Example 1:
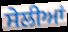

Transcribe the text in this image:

ਸੇਲੀਆਂ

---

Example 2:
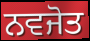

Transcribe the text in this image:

ਨਵਜੋਤ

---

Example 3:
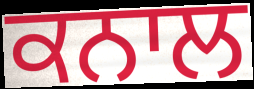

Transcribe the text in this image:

ਕਨਾਲ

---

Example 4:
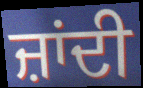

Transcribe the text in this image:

ਜ਼ਾਂਦੀ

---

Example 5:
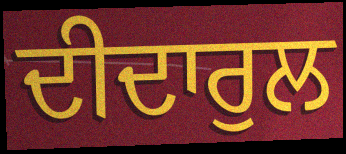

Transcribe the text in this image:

ਦੀਦਾਰੁਲ